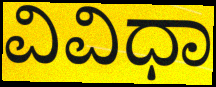
ವಿವಿಧಾ